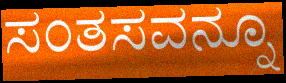
ಸಂತಸವನ್ನೂ